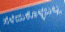
ಸೆಳೆದುಕೊಳ್ಳಬಲ್ಲ